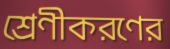
শ্রেণীকরণের